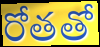
రోతతో